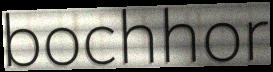
bochhor